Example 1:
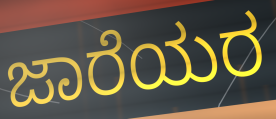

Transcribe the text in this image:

ಜಾರೆಯರ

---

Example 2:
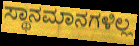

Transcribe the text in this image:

ಸ್ಥಾನಮಾನಗಳಿಲ್ಲ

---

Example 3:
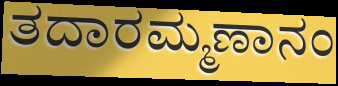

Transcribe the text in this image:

ತದಾರಮ್ಮಣಾನಂ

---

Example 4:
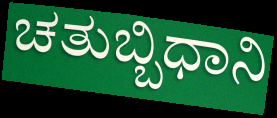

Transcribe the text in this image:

ಚತುಬ್ಬಿಧಾನಿ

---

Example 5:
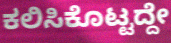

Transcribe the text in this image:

ಕಲಿಸಿಕೊಟ್ಟದ್ದೇ